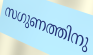
സഗുണത്തിനു